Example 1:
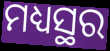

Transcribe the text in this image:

ମଧ୍ୟସ୍ଥର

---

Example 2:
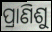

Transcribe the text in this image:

ପ୍ରାଣିଶୁ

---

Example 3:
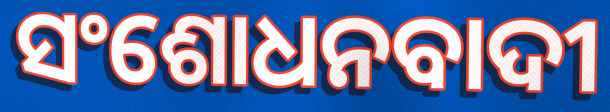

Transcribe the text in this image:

ସଂଶୋଧନବାଦୀ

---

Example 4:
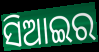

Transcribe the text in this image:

ସିଆଇର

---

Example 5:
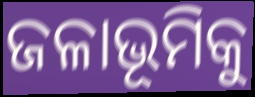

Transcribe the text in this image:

ଜଳାଭୂମିକୁ